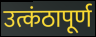
उत्कंठापूर्ण